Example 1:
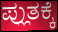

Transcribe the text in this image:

ಪ್ಲುತಕ್ಕೆ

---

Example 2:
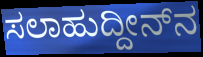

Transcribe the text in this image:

ಸಲಾಹುದ್ದೀನ್‍ನ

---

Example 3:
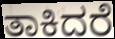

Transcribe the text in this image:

ತಾಕಿದರೆ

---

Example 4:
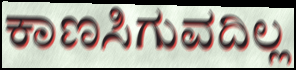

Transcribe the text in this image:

ಕಾಣಸಿಗುವದಿಲ್ಲ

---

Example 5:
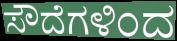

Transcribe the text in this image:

ಸೌದೆಗಳಿಂದ